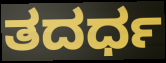
ತದರ್ಧ